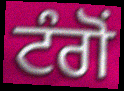
ਟੰਗੋਂ